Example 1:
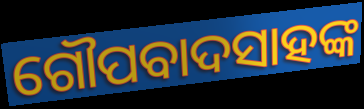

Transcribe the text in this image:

ଗୌପବାଦସାହଙ୍କ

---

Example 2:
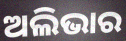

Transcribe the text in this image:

ଅଲିଭାର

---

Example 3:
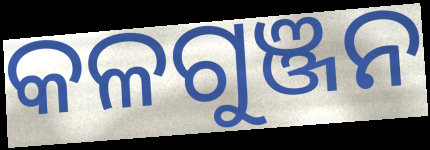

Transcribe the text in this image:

କଳଗୁଞ୍ଜନ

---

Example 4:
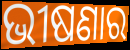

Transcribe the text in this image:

ଭୀଷଣାର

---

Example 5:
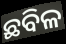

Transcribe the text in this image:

ଛବିଳ